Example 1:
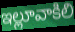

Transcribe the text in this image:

ఇల్లూవాకిలి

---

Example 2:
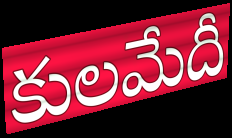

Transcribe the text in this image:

కులమేదీ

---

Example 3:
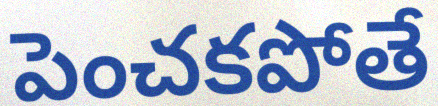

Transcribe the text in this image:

పెంచకపోతే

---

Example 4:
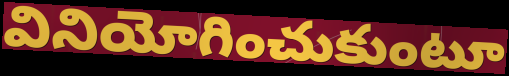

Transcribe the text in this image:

వినియోగించుకుంటూ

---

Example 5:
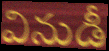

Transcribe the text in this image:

వినుడీ